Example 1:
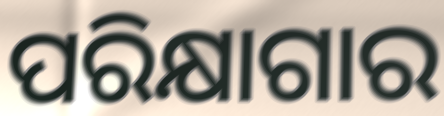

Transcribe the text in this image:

ପରିକ୍ଷାଗାର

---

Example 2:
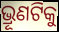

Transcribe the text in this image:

ଭ୍ରୂଣଟିକୁ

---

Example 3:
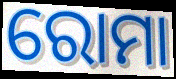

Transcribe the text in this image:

ରୋମା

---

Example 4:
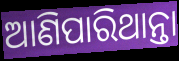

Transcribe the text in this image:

ଆଣିପାରିଥାନ୍ତା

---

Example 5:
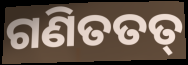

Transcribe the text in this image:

ଗଣିତତତ୍